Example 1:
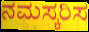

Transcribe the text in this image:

ನಮಸ್ಕರಿಸ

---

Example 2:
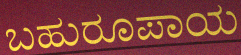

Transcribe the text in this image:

ಬಹುರೂಪಾಯ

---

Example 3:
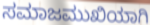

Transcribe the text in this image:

ಸಮಾಜಮುಖಿಯಾಗಿ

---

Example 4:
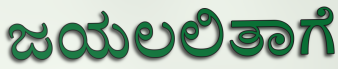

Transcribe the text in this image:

ಜಯಲಲಿತಾಗೆ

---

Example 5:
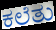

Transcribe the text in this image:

ಕಲೆತು